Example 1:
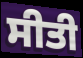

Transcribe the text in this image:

ਸੀਤੀ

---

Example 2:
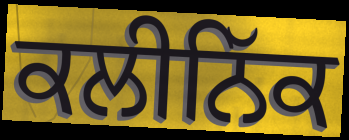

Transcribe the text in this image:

ਕਲੀਨਿੱਕ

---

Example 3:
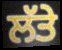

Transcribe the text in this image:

ਲੱਤੇ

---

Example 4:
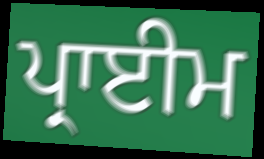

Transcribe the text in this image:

ਪ੍ਰਾਈਮ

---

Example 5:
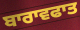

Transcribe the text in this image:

ਬਾਰਾਵਫਾਤ